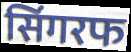
सिंगरफ